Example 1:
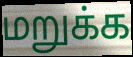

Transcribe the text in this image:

மறுக்க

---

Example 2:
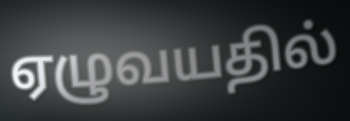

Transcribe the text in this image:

ஏழுவயதில்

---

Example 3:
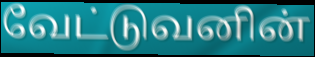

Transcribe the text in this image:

வேட்டுவனின்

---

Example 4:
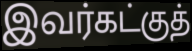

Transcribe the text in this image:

இவர்கட்குத்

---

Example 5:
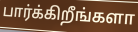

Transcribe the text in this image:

பார்க்கிறீங்களா